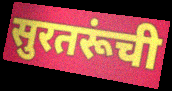
सुरतरूंची